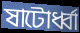
ষাটোর্ধ্বা